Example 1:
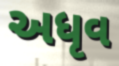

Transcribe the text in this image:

અધૃવ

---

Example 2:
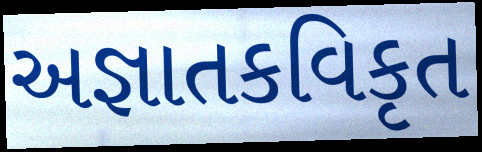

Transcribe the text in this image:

અજ્ઞાતકવિકૃત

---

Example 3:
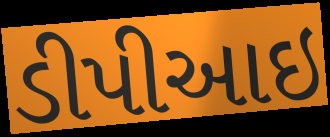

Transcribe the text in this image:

ડીપીઆઇ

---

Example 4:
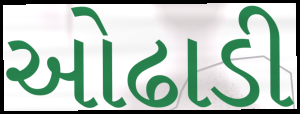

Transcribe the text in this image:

ઓઢાડી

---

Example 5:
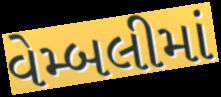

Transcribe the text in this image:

વેમ્બલીમાં